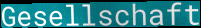
Gesellschaft